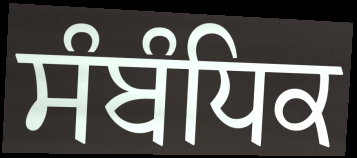
ਸੰਬੰਧਿਕ